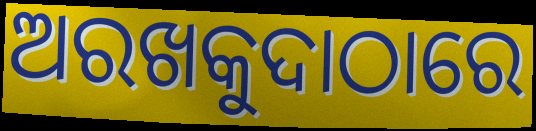
ଅରଖକୁଦାଠାରେ